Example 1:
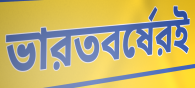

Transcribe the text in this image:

ভারতবর্ষেরই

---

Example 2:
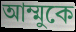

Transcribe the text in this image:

আম্মুকে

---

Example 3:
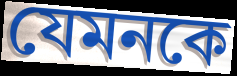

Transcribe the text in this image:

যেমনকে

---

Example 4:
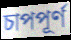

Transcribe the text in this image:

চাপপূর্ণ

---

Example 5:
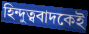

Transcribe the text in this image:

হিন্দুত্ববাদকেই